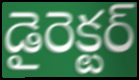
డైరెక్టర్